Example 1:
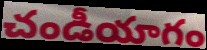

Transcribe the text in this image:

చండీయాగం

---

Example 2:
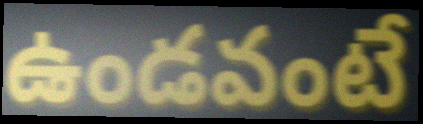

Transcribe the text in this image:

ఉండవంటే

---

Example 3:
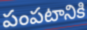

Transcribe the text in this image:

పంపటానికి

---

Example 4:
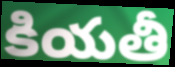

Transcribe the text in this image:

కియతీ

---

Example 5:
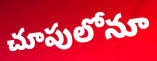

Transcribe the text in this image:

చూపులోనూ